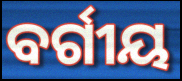
ବର୍ଗୀୟ